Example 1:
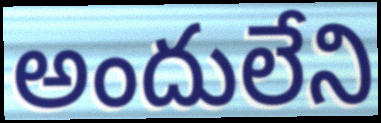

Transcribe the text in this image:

అందులేని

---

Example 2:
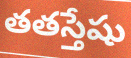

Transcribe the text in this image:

తతస్తేషు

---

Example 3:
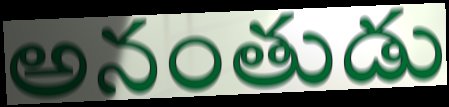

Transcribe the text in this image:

అనంతుడు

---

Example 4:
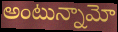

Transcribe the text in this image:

అంటున్నామో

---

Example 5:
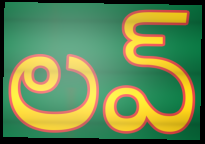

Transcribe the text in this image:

లవ్